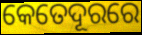
କେତେଦୂରରେ